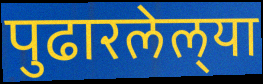
पुढारलेल्या